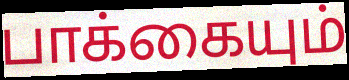
பாக்கையும்